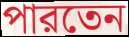
পারতেন